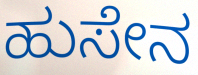
ಹುಸೇನ